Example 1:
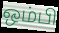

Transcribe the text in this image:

ஒம்பி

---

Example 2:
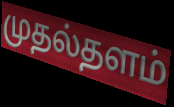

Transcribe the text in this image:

முதல்தளம்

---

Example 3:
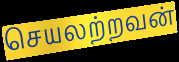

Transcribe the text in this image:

செயலற்றவன்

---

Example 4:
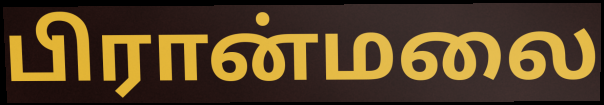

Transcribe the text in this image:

பிரான்மலை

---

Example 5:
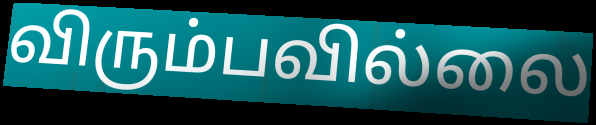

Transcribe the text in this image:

விரும்பவில்லை